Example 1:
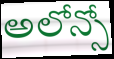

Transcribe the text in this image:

అలోన్సో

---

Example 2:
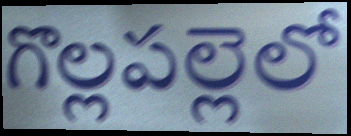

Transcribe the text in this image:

గొల్లపల్లెలో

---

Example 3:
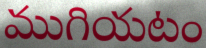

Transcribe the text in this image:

ముగియటం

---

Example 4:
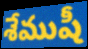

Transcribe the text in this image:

శేముషీ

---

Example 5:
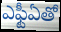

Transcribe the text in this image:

ఎఫ్టీఏతో